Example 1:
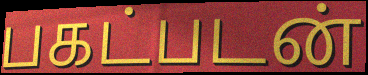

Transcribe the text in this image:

பகட்படன்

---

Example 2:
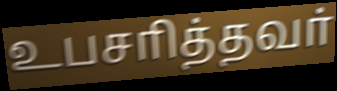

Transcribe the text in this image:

உபசரித்தவர்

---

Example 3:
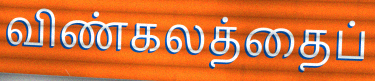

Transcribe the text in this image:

விண்கலத்தைப்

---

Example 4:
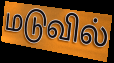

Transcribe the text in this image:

மடுவில்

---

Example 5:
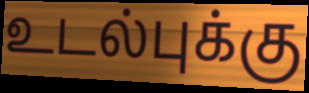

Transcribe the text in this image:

உடல்புக்கு